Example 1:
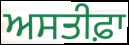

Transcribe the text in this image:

ਅਸਤੀਫ਼ਾ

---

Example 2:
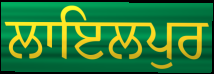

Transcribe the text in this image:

ਲਾਇਲਪੁਰ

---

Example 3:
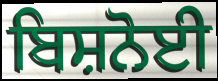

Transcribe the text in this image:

ਬਿਸ਼ਨੋਈ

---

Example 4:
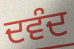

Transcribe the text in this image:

ਦਵੰਦ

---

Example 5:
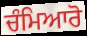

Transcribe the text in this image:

ਚੰਮਿਆਰੋ